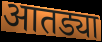
आतड्या